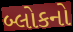
બ્લોકનો